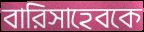
বারিসাহেবকে